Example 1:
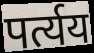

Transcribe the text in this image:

पर्त्यय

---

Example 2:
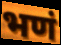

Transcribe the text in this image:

भणं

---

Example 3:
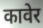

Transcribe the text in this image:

कावेर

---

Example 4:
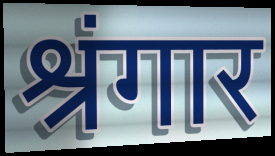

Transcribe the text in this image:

श्रंगार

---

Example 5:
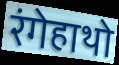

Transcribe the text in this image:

रंगेहाथो